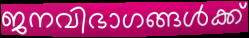
ജനവിഭാഗങ്ങൾക്ക്